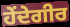
ਹੇਂਦੇਗੀਰ